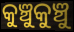
କୁଞ୍ଚୁକୁଞ୍ଚୁ